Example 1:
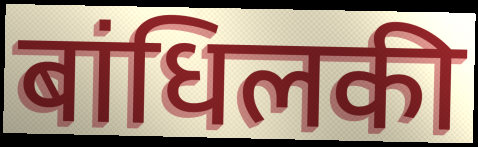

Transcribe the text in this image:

बांधिलकी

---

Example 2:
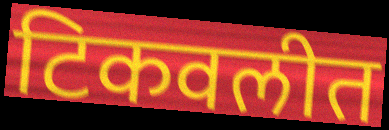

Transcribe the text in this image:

टिकवलीत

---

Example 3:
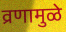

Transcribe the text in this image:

व्रणामुळे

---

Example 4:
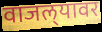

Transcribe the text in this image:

वाजल्यावर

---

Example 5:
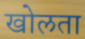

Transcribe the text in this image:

खोलता